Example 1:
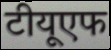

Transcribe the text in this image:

टीयूएफ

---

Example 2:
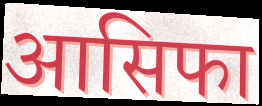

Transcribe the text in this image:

आसिफा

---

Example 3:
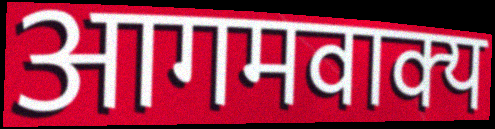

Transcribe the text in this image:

आगमवाक्य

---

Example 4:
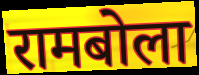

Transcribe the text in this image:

रामबोला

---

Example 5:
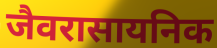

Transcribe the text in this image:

जैवरासायनिक